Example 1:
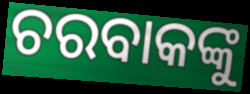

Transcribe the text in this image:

ଚରବାକଙ୍କୁ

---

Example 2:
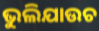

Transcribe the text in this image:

ଭୁଲିଯାଉଚ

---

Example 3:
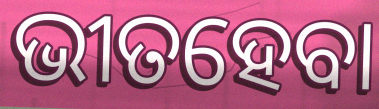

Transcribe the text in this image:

ଭୀତହେବା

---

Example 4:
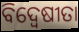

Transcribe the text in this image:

ବିଦ୍ଵେଷୀତା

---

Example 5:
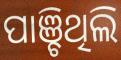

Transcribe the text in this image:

ପାଞ୍ଚିଥିଲି